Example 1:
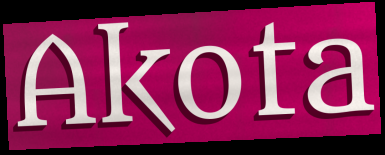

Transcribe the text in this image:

Akota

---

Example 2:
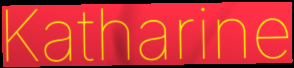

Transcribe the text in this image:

Katharine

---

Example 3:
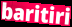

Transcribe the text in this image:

baritiri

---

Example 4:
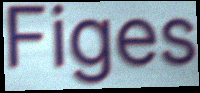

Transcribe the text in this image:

Figes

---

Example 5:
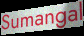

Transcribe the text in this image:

Sumangal